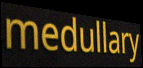
medullary